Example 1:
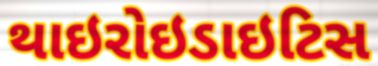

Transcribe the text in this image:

થાઇરોઇડાઇટિસ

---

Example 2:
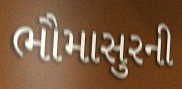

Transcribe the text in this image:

ભૌમાસુરની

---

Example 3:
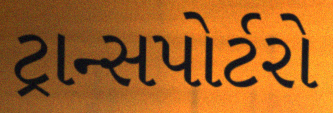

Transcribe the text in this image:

ટ્રાન્સપોર્ટરો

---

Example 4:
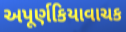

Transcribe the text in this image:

અપૂર્ણકિયાવાચક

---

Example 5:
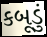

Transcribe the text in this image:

કબૂડું